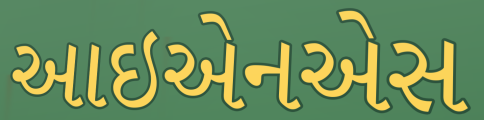
આઇએનએસ